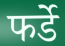
फर्डे